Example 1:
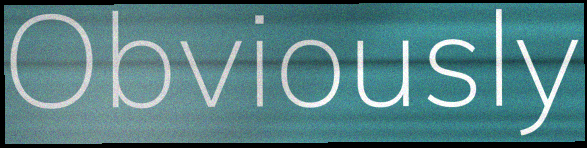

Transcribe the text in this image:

Obviously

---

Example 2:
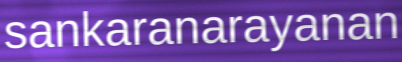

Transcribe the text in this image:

sankaranarayanan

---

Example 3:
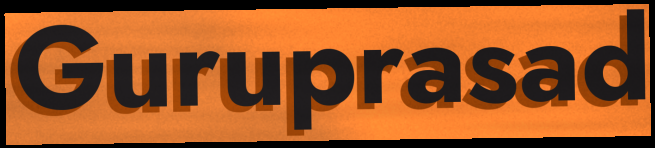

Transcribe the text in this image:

Guruprasad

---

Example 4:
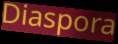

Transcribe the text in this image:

Diaspora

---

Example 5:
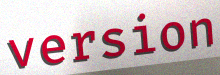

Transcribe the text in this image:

version